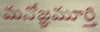
మనోజ్ఞమూర్తి